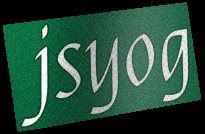
jsyog